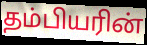
தம்பியரின்